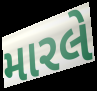
મારલે